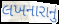
લખનારાનું